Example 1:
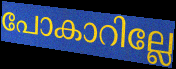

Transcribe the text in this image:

പോകാറില്ലേ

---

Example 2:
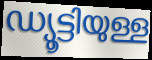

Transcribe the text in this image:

ഡ്യൂട്ടിയുള്ള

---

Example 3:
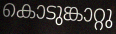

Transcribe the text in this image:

കൊടുങ്കാറ്റു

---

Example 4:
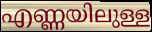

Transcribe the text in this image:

എണ്ണയിലുള്ള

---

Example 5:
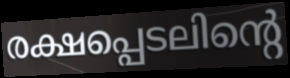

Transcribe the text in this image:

രക്ഷപ്പെടലിന്റെ